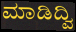
ಮಾಡಿದ್ವಿ